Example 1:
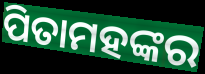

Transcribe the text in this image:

ପିତାମହଙ୍କର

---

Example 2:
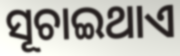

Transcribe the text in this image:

ସୂଚାଇଥାଏ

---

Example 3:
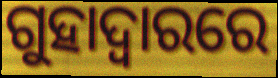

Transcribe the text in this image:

ଗୁହାଦ୍ଵାରରେ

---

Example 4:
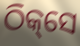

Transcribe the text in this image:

ଠିକ୍‌ସେ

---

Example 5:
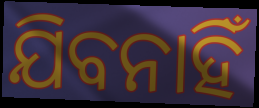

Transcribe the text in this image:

ଯିବନାହିଁ